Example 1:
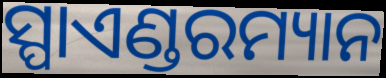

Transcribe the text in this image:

ସ୍ପାଏଣ୍ଡରମ୍ୟାନ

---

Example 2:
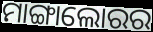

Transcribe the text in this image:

ମାଙ୍ଗାଲୋରର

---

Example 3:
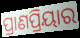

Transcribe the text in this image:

ପ୍ରାଣପ୍ରିୟାର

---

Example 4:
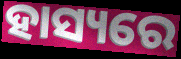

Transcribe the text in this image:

ହାସ୍ୟରେ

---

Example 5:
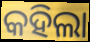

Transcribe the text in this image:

କହିଲା